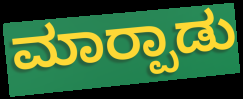
ಮಾರ‍್ಪಾಡು